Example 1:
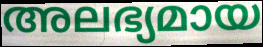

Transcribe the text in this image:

അലഭ്യമായ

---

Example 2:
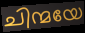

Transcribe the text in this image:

ചിന്മയേ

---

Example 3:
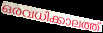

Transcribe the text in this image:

ഒരവധിക്കാലത്ത്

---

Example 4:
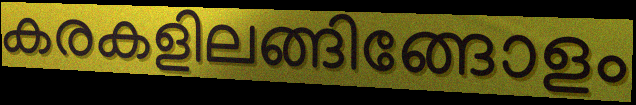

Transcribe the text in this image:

കരകളിലങ്ങിങ്ങോളം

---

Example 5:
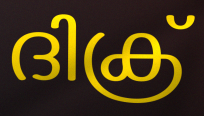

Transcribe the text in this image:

ദിക്ര്